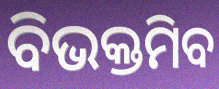
ବିଭକ୍ତମିବ